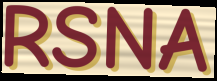
RSNA